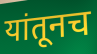
यांतूनच